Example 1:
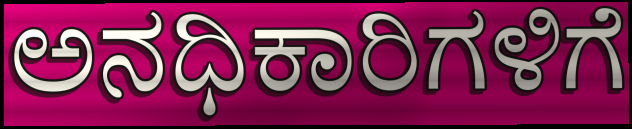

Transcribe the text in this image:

ಅನಧಿಕಾರಿಗಳಿಗೆ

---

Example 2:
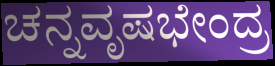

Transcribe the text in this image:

ಚನ್ನವೃಷಭೇಂದ್ರ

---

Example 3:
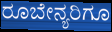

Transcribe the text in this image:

ರೂಬೇನ್ಯರಿಗೂ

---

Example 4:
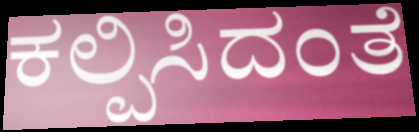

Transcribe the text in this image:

ಕಲ್ಪಿಸಿದಂತೆ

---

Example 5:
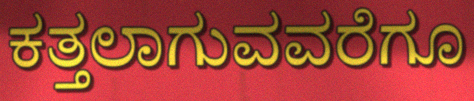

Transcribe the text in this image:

ಕತ್ತಲಾಗುವವರೆಗೂ